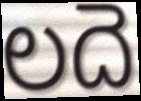
లదె